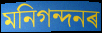
মনিগন্দনৰ